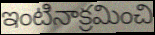
ఇంటినాక్రమించి